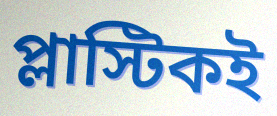
প্লাস্টিকই